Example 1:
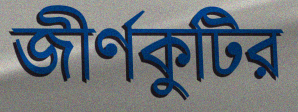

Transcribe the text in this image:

জীর্ণকুটির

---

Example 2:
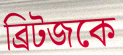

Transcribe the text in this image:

ব্রিটজকে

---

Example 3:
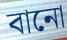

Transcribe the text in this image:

বানো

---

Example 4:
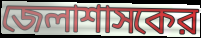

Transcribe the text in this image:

জেলাশাসকের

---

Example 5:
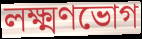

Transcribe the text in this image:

লক্ষ্মণভোগ